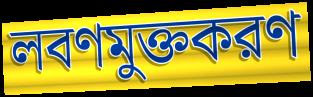
লবণমুক্তকরণ